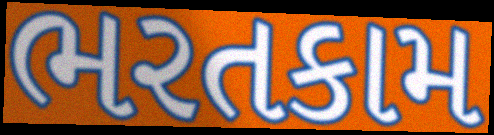
ભરતકામ